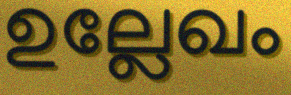
ഉല്ലേഖം